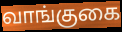
வாங்குகை